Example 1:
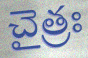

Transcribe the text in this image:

చైత్రః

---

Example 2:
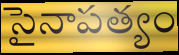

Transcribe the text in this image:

సైనాపత్యం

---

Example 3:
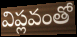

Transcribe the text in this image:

విప్లవంతో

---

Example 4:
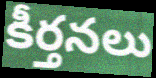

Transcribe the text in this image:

కీర్తనలు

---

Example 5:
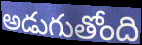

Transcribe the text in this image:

అడుగుతోంది